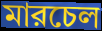
মারচেল